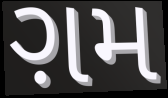
ગ઼મ